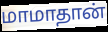
மாமாதான்